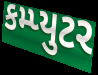
કમ્પ્યુટર